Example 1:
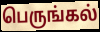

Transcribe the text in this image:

பெருங்கல்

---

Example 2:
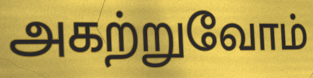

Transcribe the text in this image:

அகற்றுவோம்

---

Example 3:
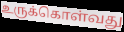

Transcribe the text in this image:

உருக்கொள்வது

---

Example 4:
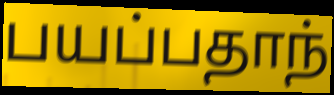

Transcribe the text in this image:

பயப்பதாந்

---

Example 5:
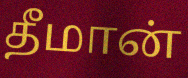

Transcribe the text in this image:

தீமான்